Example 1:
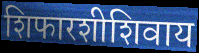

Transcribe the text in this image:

शिफारशीशिवाय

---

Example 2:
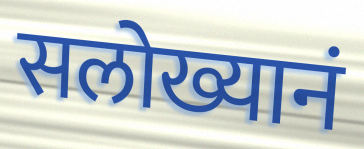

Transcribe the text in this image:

सलोख्यानं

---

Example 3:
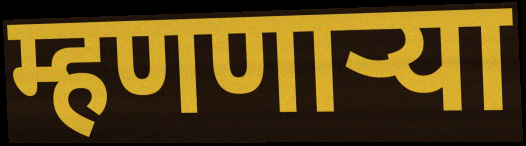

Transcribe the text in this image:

म्हणणार्‍या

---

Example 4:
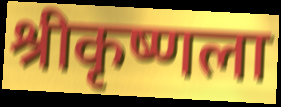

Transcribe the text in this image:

श्रीकृष्णला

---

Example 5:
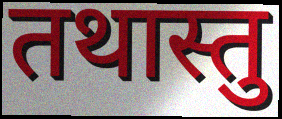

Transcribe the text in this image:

तथास्तु